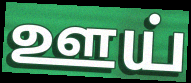
ஊய்